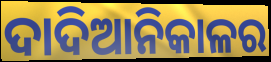
ଦାଦିଆନିକାଳର